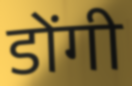
डोंगी